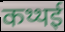
कथ्थई